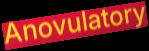
Anovulatory